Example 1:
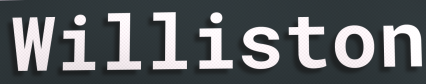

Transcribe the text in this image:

Williston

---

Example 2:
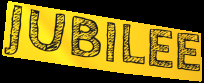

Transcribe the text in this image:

JUBILEE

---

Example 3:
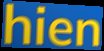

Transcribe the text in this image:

hien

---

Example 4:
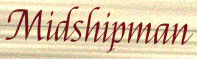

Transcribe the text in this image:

Midshipman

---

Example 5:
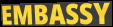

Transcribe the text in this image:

EMBASSY